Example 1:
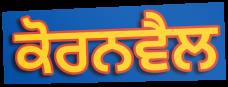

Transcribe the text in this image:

ਕੋਰਨਵੈਲ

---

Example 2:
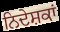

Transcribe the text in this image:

ਨਿਦੇਸ਼ਕਾਂ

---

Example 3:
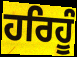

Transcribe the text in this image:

ਹਰਿਹੂੰ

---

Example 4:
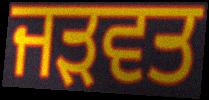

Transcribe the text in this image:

ਜੜਵਤ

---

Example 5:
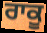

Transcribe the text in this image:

ਰਾਕੂ